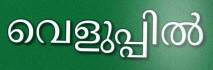
വെളുപ്പിൽ